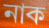
নাক